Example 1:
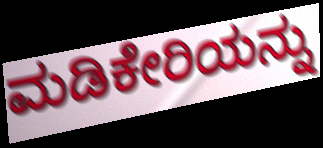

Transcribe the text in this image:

ಮಡಿಕೇರಿಯನ್ನು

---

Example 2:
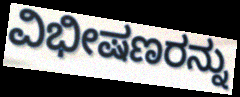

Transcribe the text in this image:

ವಿಭೀಷಣರನ್ನು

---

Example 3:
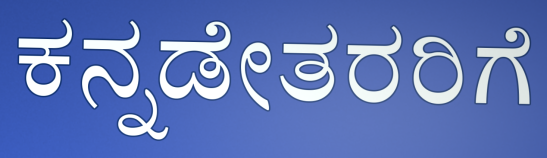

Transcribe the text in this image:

ಕನ್ನಡೇತರರಿಗೆ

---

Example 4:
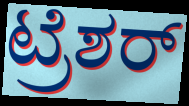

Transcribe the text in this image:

ಟ್ರೆಶರ್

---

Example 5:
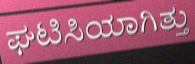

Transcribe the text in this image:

ಘಟಿಸಿಯಾಗಿತ್ತು